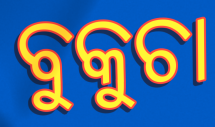
ବୁକୁଚା